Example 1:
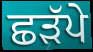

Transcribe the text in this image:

ਛੜੱਪੇ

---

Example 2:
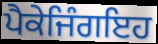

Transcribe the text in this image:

ਪੈਕੇਜਿੰਗਇਹ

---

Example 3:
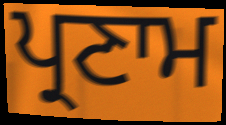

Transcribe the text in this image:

ਪ੍ਰਣਾਮ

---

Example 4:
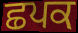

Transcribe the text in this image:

ਛਪਕ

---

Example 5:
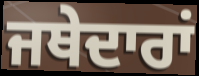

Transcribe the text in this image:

ਜਥੇਦਾਰਾਂ